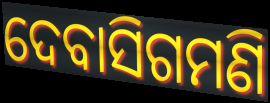
ଦେବାସିଗମଣି